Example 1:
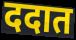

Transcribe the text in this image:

ददात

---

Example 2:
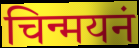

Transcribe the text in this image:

चिन्मयनं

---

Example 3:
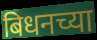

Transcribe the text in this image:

बिधनच्या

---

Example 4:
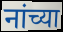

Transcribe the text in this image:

नांच्या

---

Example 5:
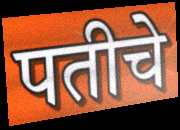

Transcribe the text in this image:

पतीचे